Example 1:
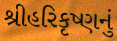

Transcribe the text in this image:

શ્રીહરિકૃષ્ણનું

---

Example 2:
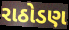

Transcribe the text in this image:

રાઠોડણ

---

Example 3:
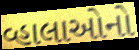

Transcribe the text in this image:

વ્હાલાઓનો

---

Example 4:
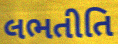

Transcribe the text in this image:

લભતીતિ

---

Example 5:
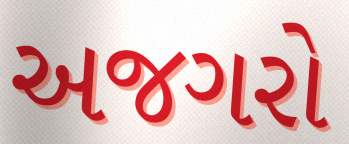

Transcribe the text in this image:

અજગરો